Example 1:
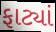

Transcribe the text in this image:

ફાટ્યાં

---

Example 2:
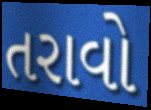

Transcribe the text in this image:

તરાવો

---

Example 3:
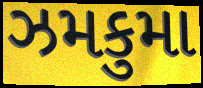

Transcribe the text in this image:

ઝમકુમા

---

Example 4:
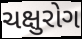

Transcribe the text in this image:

ચક્ષુરોગ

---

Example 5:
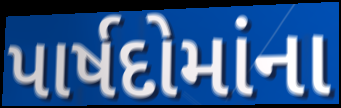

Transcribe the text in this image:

પાર્ષદોમાંના